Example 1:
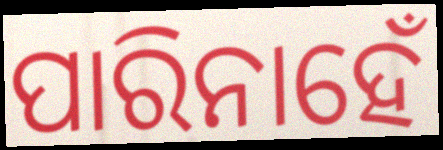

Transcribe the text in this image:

ପାରିନାହେଁ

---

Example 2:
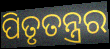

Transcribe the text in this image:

ପିତୃତନ୍ତ୍ରର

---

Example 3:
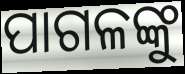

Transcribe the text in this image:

ପାଗଳଙ୍କୁ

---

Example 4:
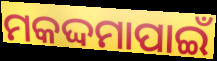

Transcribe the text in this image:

ମକଦ୍ଦମାପାଇଁ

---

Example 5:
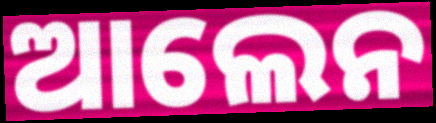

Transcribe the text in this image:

ଆଲେନ